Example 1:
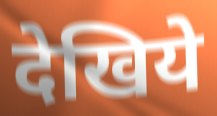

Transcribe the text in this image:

देखिये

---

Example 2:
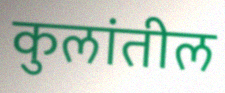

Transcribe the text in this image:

कुलांतील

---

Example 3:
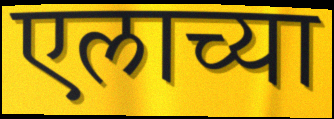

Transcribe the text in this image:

एलाच्या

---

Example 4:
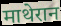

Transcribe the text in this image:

माथेरान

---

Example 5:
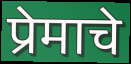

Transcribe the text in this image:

प्रेमाचे